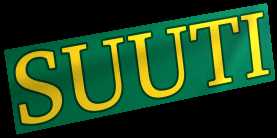
SUUTI